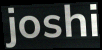
joshi